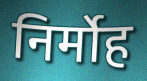
निर्मोह